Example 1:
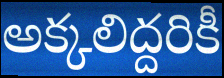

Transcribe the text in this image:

అక్కలిద్దరికీ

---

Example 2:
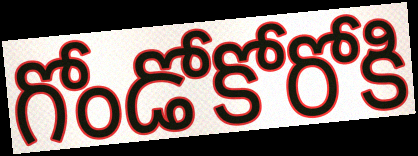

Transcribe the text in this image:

గోండోకోరోకి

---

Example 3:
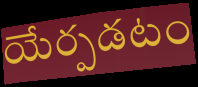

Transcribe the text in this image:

యేర్పడటం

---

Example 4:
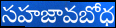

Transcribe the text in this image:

సహజావబోధ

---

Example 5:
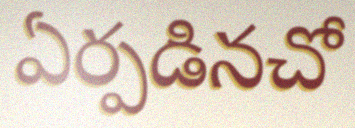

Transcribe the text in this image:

ఏర్పడినచో